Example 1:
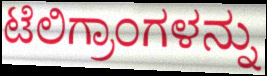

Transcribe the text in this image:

ಟೆಲಿಗ್ರಾಂಗಳನ್ನು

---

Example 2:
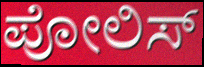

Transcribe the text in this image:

ಪೋಲಿಸ್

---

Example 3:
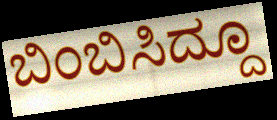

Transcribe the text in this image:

ಬಿಂಬಿಸಿದ್ದೂ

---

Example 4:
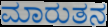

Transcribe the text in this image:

ಮಾರುತನ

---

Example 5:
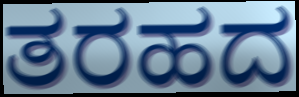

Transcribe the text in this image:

ತರಹದ